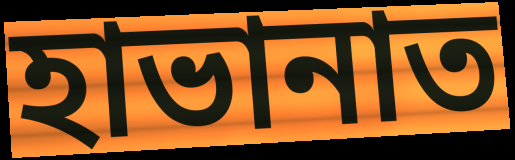
হাভানাত